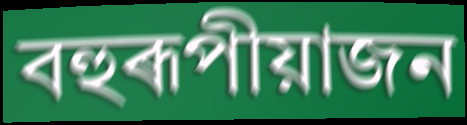
বহুৰূপীয়াজন